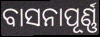
ବାସନାପୂର୍ଣ୍ଣ